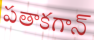
పతాకగాన్